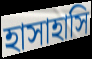
হাসাহাসি